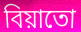
বিয়াতো